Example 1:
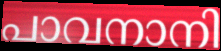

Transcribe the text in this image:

പാവനാനി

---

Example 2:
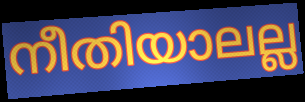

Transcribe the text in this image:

നീതിയാലല്ല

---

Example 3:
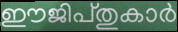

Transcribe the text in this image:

ഈജിപ്തുകാർ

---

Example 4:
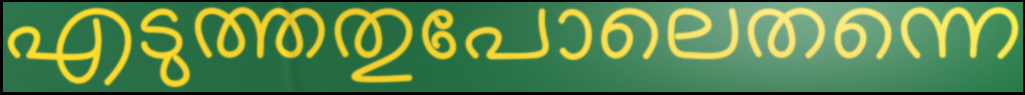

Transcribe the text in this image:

എടുത്തതുപോലെതന്നെ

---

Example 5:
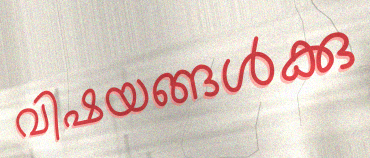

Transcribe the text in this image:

വിഷയങ്ങൾക്കു